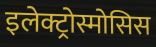
इलेक्ट्रोस्मोसिस